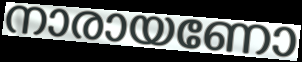
നാരായണോ